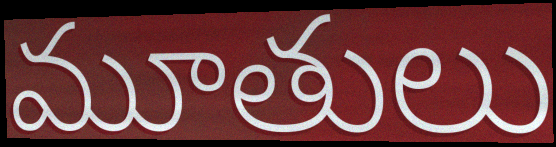
మూతులు